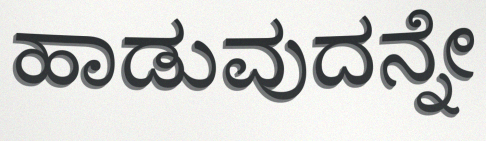
ಹಾಡುವುದನ್ನೇ